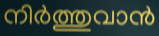
നിർത്തുവാൻ